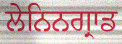
ਲੇਨਿਨਗ੍ਰਾਡ